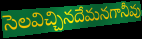
సెలవిచ్చినదేమనగానీవు